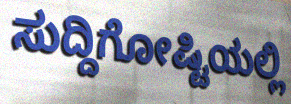
ಸುದ್ದಿಗೋಷ್ಟಿಯಲ್ಲಿ